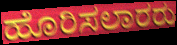
ಹೊರಿಸಲಾರರು